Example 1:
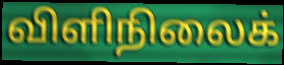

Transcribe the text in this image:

விளிநிலைக்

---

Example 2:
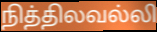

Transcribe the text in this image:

நித்திலவல்லி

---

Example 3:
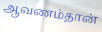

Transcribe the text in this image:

ஆவணம்தான்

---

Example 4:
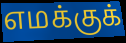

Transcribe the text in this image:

எமக்குக்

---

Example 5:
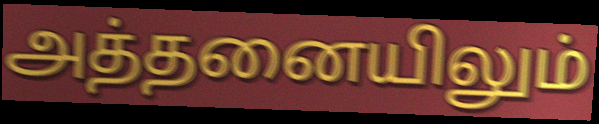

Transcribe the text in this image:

அத்தனையிலும்